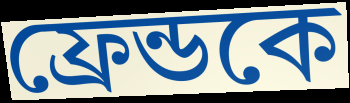
ফ্রেন্ডকে